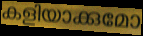
കളിയാക്കുമോ